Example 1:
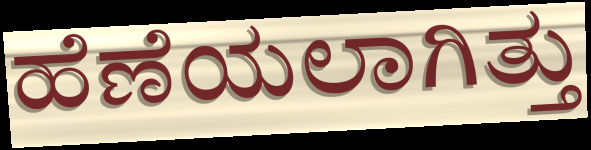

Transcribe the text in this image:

ಹೆಣೆಯಲಾಗಿತ್ತು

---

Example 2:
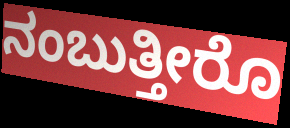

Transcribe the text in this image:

ನಂಬುತ್ತೀರೊ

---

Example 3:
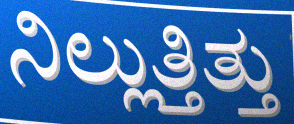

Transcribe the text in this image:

ನಿಲ್ಲುತ್ತಿತ್ತು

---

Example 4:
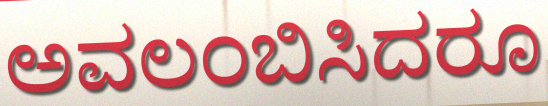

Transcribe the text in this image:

ಅವಲಂಬಿಸಿದರೂ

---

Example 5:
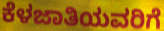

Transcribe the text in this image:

ಕೆಳಜಾತಿಯವರಿಗೆ